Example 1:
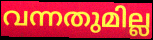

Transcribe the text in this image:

വന്നതുമില്ല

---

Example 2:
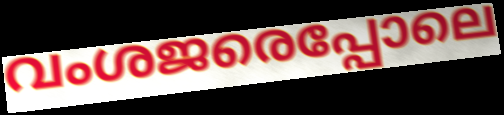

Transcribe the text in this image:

വംശജരെപ്പോലെ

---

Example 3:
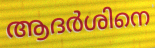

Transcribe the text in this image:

ആദർശിനെ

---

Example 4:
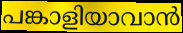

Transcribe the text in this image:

പങ്കാളിയാവാൻ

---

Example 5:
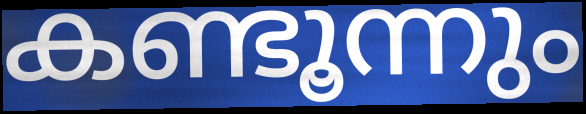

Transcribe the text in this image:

കണ്ടൂന്നും